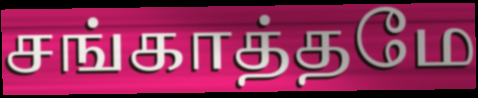
சங்காத்தமே